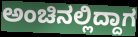
ಅಂಚಿನಲ್ಲಿದ್ದಾಗ